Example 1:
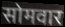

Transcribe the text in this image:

सोमवार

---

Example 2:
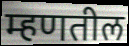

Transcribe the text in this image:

म्हणतील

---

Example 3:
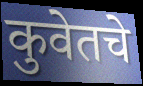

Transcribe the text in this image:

कुवेतचे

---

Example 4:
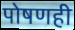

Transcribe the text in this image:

पोषणही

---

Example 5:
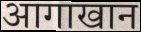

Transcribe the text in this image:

आगाखान